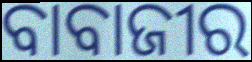
ବାବାଜୀର